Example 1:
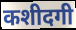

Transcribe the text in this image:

कशीदगी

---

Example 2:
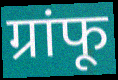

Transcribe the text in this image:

ग्रांफू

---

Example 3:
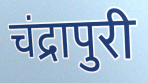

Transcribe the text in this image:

चंद्रापुरी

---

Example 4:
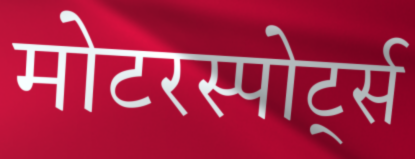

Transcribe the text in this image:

मोटरस्पोर्ट्स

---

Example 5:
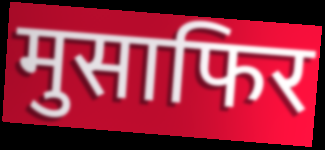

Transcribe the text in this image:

मुसाफिर